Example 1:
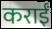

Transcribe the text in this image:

कराईं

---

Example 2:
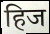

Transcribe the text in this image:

हिज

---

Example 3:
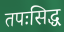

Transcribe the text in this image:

तपःसिद्ध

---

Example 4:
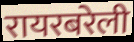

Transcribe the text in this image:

रायरबरेली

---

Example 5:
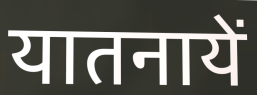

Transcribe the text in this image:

यातनायें